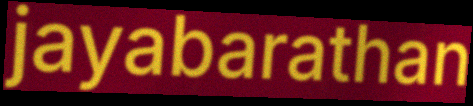
jayabarathan